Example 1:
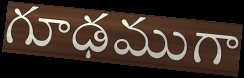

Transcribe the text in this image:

గూఢముగా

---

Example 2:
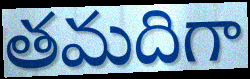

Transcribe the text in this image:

తమదిగా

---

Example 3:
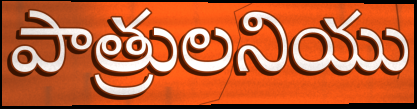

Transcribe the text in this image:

పాత్రులనియు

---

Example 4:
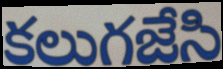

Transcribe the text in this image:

కలుగజేసి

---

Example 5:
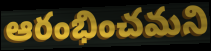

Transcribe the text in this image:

ఆరంభించమని